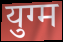
युग्म